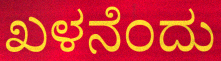
ಖಳನೆಂದು